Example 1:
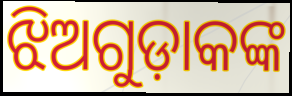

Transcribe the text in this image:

ଝିଅଗୁଡ଼ାକଙ୍କ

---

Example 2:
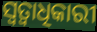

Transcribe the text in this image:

ସ୍ଵତ୍ୱାଧିକାରୀ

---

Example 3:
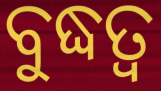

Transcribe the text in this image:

ବୁଦ୍ଧତ୍ୱ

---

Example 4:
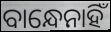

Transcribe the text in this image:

ବାନ୍ଧେନାହିଁ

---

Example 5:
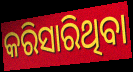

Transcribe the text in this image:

କରିସାରିଥିବା